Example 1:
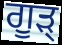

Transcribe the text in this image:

ਗੂੜ੍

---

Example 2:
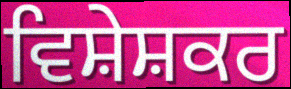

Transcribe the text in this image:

ਵਿਸ਼ੇਸ਼ਕਰ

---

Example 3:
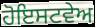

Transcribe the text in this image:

ਹੋਇਸਟਵੇਅ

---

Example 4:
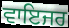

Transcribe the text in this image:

ਵਾਇਜਰ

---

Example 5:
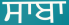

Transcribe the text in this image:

ਸਾਬਾ